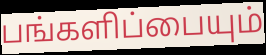
பங்களிப்பையும்